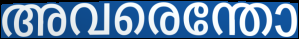
അവരെന്തോ